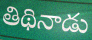
తిథినాడు